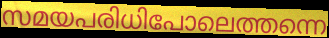
സമയപരിധിപോലെത്തന്നെ